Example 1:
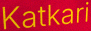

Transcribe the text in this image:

Katkari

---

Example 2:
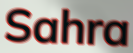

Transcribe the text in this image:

Sahra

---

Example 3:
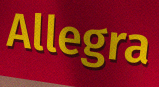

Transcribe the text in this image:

Allegra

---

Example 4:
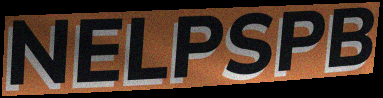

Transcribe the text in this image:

NELPSPB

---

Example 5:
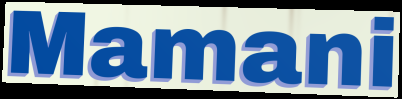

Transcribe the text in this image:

Mamani